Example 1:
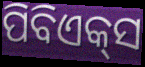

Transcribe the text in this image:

ପିବିଏକ୍‌ସ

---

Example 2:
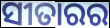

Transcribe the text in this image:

ସୀତାରର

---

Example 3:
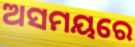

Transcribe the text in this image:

ଅସମୟରେ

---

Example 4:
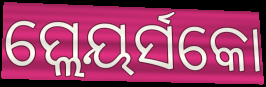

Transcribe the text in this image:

ପ୍ଲେୟର୍ସକୋ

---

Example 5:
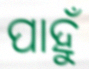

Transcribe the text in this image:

ପାହୁଁ